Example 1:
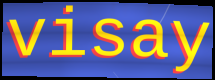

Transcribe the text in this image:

visay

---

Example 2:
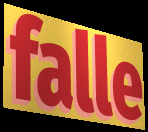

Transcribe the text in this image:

falle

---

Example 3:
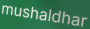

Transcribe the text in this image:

mushaldhar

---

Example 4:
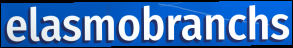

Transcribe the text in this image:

elasmobranchs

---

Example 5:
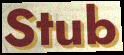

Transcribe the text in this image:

Stub